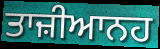
ਤਾਜ਼ੀਆਨਹ